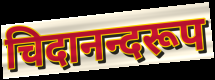
चिदानन्दरूप